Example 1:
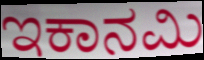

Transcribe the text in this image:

ಇಕಾನಮಿ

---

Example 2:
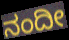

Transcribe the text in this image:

ನಂದೀ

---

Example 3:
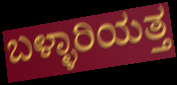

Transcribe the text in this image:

ಬಳ್ಳಾರಿಯತ್ತ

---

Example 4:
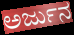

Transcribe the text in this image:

ಅರ್ಜುನ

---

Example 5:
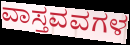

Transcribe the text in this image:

ವಾಸ್ತವವಗಳ